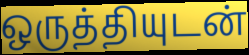
ஒருத்தியுடன்